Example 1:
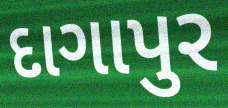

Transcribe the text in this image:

દાગાપુર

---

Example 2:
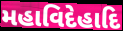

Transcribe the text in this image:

મહાવિદેહાદિ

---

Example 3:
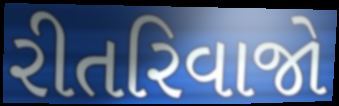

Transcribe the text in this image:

રીતરિવાજો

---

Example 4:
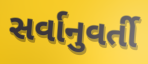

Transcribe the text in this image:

સર્વાનુવર્તી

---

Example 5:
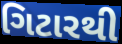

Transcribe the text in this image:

ગિટારથી